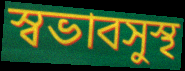
স্বভাবসুস্থ